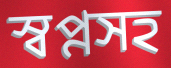
স্বপ্নসহ